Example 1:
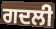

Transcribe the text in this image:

ਗਦਲੀ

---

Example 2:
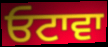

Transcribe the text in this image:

ਓਟਾਵਾ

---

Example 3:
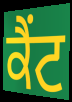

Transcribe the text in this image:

ਕੈਂਟ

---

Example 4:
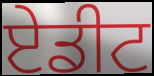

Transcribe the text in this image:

ਏਡੀਟ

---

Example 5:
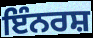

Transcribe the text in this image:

ਇੰਨਰਸ਼